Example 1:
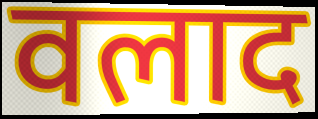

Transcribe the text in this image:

वलाद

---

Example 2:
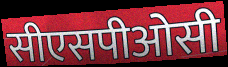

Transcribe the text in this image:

सीएसपीओसी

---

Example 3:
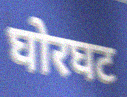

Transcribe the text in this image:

घोरघट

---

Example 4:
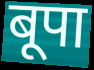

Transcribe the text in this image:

बूपा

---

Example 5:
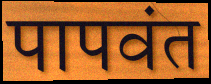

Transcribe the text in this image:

पापवंत